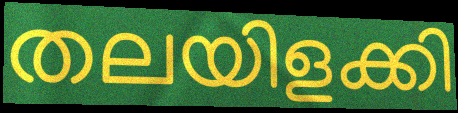
തലയിളക്കി